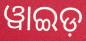
ୱାଇଡ଼